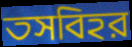
তসবিহর